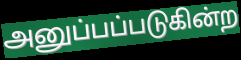
அனுப்பப்படுகின்ற